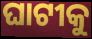
ଘାଟୀକୁ